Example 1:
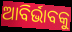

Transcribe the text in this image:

ଆବିର୍ଭାବକୁ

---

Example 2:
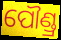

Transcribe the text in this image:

ପୌଣ୍ଡ୍ର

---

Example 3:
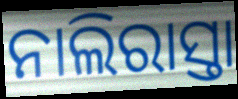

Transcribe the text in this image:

ନାଲିରାସ୍ତା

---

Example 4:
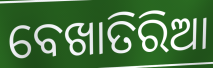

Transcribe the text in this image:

ବେଖାତିରିଆ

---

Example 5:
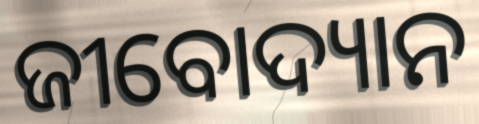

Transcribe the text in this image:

ଜୀବୋଦ୍ୟାନ